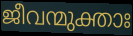
ജീവന്മുക്താഃ